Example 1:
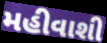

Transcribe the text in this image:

મહીવાશી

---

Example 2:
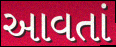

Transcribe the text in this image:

આવતાં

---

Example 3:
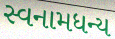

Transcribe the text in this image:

સ્વનામધન્ય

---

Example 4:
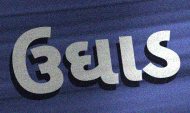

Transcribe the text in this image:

ઉઘાડ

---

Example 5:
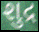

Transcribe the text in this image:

શુદ્ર